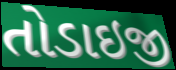
તોડાઇજી